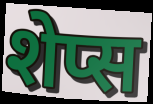
शेप्स